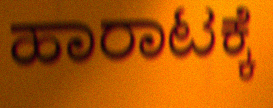
ಹಾರಾಟಕ್ಕೆ